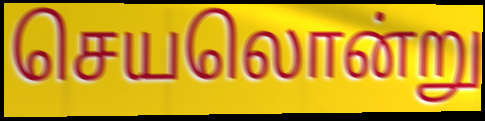
செயலொன்று